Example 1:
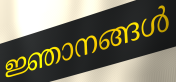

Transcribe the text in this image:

ജ്ഞാനങ്ങൾ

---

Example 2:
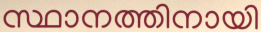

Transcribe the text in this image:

സ്ഥാനത്തിനായി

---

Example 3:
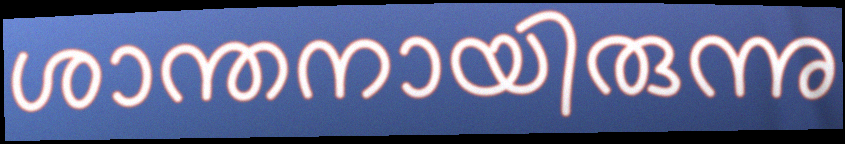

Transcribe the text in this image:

ശാന്തനായിരുന്നു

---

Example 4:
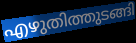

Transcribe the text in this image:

എഴുതിത്തുടങ്ങി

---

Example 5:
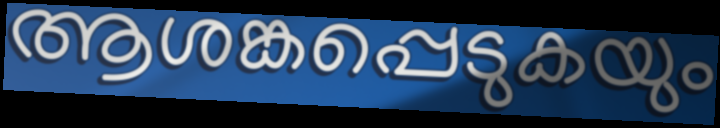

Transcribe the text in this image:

ആശങ്കപ്പെടുകയും